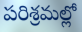
పరిశ్రమల్లో